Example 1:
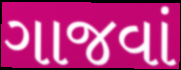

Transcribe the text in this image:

ગાજવાં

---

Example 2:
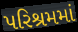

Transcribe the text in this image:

પરિશ્રમમાં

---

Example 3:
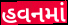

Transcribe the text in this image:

હવનમાં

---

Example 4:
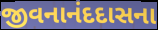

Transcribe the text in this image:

જીવનાનંદદાસના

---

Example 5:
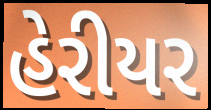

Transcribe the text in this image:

હેરીયર